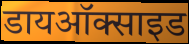
डायऑक्साइड